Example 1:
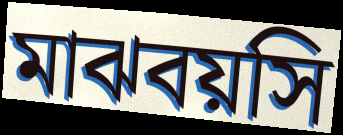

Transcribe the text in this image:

মাঝবয়সি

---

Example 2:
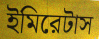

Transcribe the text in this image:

ইমিরেটাস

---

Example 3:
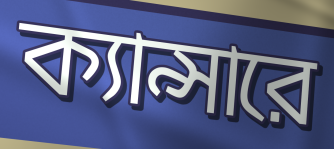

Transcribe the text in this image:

ক্যান্সারে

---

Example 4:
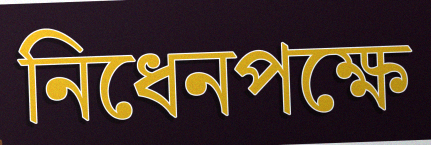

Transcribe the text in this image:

নিধেনপক্ষে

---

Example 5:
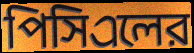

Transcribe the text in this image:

পিসিএলের